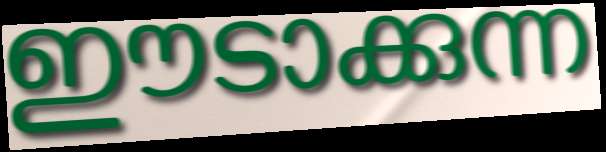
ഈടാക്കുന്ന